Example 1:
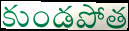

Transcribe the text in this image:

కుండపోత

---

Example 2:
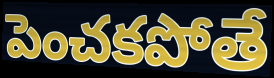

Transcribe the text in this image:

పెంచకపోతే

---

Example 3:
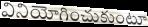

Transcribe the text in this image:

వినియోగించుకుంటూ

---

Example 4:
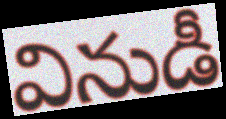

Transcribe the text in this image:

వినుడీ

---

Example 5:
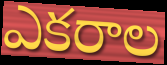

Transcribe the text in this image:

ఎకరాల